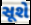
સૂશે